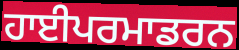
ਹਾਈਪਰਮਾਡਰਨ